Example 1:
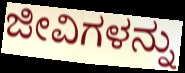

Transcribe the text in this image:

ಜೀವಿಗಳನ್ನು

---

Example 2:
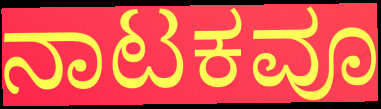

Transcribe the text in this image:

ನಾಟಕವೂ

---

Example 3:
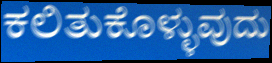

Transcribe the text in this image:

ಕಲಿತುಕೊಳ್ಳುವುದು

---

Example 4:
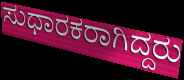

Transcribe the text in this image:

ಸುಧಾರಕರಾಗಿದ್ದರು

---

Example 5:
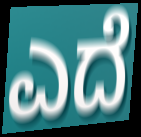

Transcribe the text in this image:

ಎದೆ